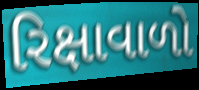
રિક્ષાવાળો